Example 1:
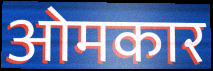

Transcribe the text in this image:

ओमकार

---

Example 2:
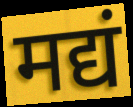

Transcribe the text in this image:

मद्यं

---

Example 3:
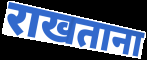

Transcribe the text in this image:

राखताना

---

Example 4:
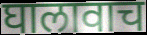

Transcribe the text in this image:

घालावाच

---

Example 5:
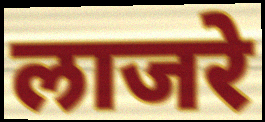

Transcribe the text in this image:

लाजरे